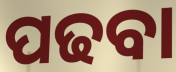
ପଢବା